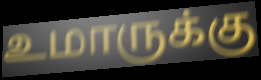
உமாருக்கு